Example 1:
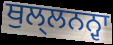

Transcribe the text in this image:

ਥੁਲ੍ਲਨਨ੍ਦਾ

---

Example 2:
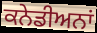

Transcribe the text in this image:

ਕਨੇਡੀਅਨਾਂ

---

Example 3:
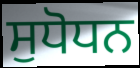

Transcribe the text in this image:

ਸੁਧੋਧਨ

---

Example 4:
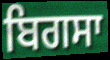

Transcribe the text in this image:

ਬਿਗਸਾ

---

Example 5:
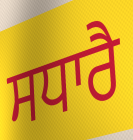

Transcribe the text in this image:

ਸਧਾਰੈ